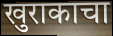
खुराकाचा